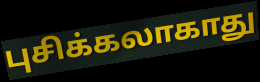
புசிக்கலாகாது